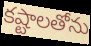
కష్టాలతోను